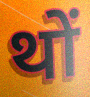
थों